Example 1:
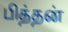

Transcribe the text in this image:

பித்தன்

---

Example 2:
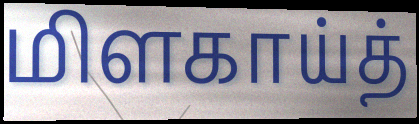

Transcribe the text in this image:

மிளகாய்த்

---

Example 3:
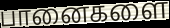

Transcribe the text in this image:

பானைகளை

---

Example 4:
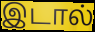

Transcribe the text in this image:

இடால்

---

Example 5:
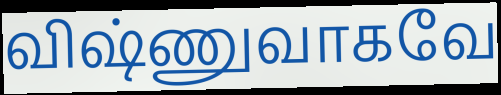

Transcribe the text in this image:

விஷ்ணுவாகவே